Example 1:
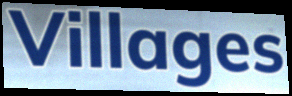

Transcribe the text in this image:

Villages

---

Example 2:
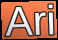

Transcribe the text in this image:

Ari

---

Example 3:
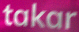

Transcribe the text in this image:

takar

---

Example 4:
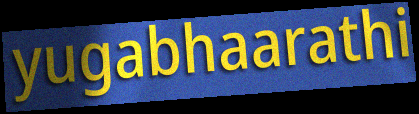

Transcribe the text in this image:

yugabhaarathi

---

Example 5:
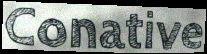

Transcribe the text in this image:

Conative